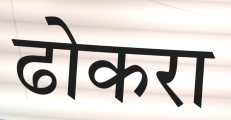
ढोकरा